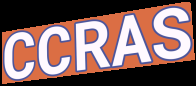
CCRAS